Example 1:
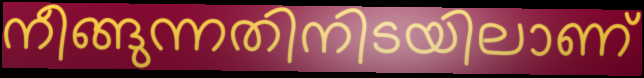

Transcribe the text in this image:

നീങ്ങുന്നതിനിടയിലാണ്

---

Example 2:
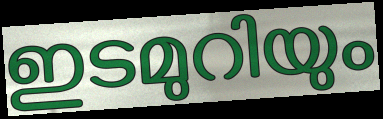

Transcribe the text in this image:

ഇടമുറിയും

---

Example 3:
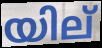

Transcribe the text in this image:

യില്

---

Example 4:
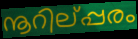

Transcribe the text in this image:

നൂറില്പ്പരം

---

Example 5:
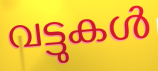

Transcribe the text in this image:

വട്ടുകൾ